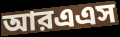
আরএএস